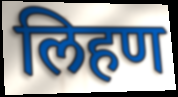
लिहण